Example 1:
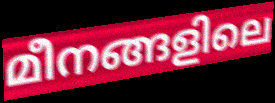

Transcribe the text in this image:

മീനങ്ങളിലെ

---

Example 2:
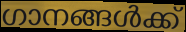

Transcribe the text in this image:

ഗാനങ്ങൾക്ക്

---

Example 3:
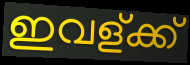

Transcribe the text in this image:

ഇവള്ക്ക്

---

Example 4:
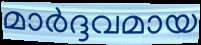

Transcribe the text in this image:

മാർദ്ദവമായ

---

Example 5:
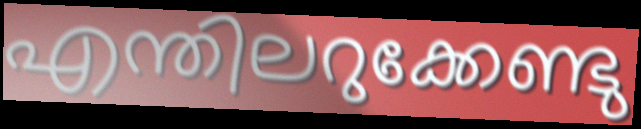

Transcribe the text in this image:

എന്തിലറുക്കേണ്ടു